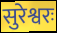
सुरेश्वरः